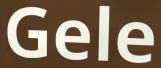
Gele